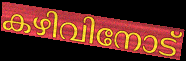
കഴിവിനോട്